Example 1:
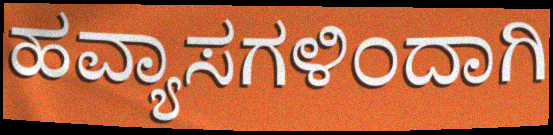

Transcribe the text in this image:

ಹವ್ಯಾಸಗಳಿಂದಾಗಿ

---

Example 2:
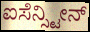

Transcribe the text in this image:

ಐಸೆನ್ಸ್ಟೀನ್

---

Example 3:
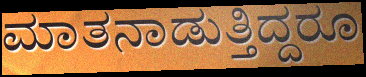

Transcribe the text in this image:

ಮಾತನಾಡುತ್ತಿದ್ದರೂ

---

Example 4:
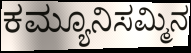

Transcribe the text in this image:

ಕಮ್ಯೂನಿಸಮ್ಮಿನ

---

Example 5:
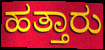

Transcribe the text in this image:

ಹತ್ತಾರು